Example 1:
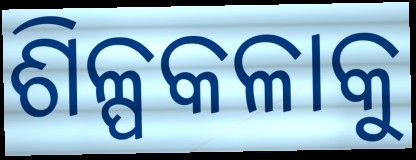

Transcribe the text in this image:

ଶିଳ୍ପକଳାକୁ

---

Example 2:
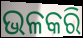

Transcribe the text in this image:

ଭଳକରି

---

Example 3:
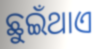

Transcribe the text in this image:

ଛୁଇଁଥାଏ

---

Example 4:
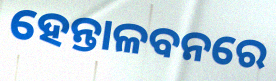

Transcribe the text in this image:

ହେନ୍ତାଳବନରେ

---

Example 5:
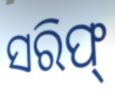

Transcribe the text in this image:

ସରିଫ୍